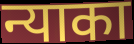
न्याका